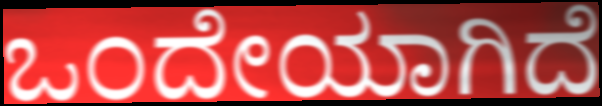
ಒಂದೇಯಾಗಿದೆ